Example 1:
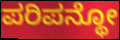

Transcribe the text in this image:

ಪರಿಪನ್ಥೋ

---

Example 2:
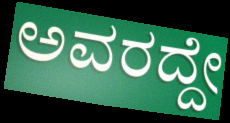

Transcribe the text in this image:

ಅವರದ್ದೇ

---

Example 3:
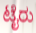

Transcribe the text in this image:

ಟೈರು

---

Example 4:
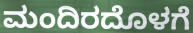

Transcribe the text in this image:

ಮಂದಿರದೊಳಗೆ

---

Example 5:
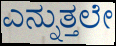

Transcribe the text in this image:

ಎನ್ನುತ್ತಲೇ